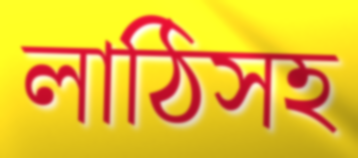
লাঠিসহ